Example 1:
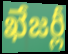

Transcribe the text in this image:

ఖేజర్లీ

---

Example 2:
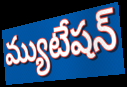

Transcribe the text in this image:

మ్యుటేషన్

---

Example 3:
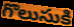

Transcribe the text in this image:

గొలుసుకి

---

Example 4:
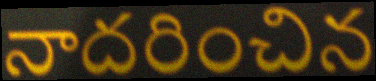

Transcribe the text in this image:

నాదరించిన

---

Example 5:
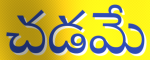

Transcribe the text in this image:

చడమే